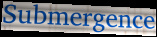
Submergence